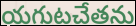
యగుటచేతను